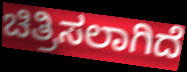
ಚಿತ್ರಿಸಲಾಗಿದೆ